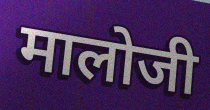
मालोजी